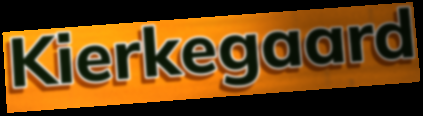
Kierkegaard